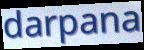
darpana